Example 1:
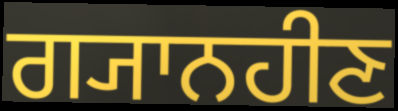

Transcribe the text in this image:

ਗ੍ਯਾਨਹੀਣ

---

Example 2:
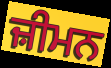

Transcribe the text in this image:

ਜ਼ੀਮਨ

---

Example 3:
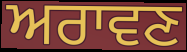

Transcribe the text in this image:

ਅਰਾਵਣ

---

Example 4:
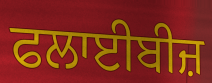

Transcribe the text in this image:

ਫਲਾਈਬੀਜ਼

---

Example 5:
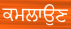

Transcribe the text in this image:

ਕਮਲਾਉਣ